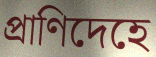
প্রাণিদেহে